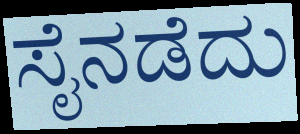
ಸೈನಡೆದು